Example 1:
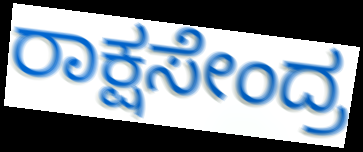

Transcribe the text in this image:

ರಾಕ್ಷಸೇಂದ್ರ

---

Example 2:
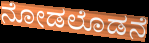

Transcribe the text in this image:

ನೋಡಲೊಡನೆ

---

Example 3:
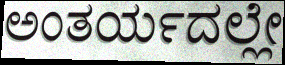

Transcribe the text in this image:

ಅಂತರ್ಯದಲ್ಲೇ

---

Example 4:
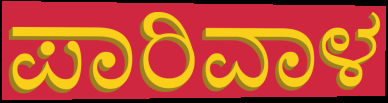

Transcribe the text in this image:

ಪಾರಿವಾಳ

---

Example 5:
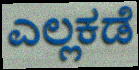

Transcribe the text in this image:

ಎಲ್ಲಕಡೆ